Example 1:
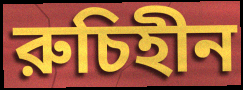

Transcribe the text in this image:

রুচিহীন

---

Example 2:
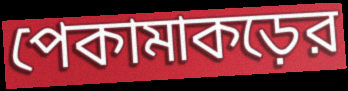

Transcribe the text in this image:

পেকামাকড়ের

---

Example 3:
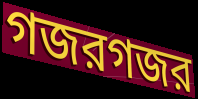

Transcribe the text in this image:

গজরগজর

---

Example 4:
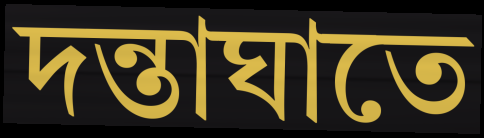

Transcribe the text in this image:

দন্তাঘাতে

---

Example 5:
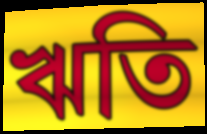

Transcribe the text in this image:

ঋতি